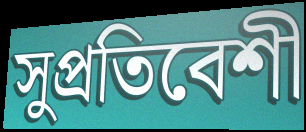
সুপ্রতিবেশী